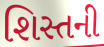
શિસ્તની